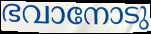
ഭവാനോടു